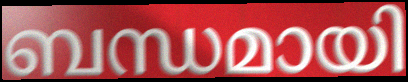
ബന്ധമായി